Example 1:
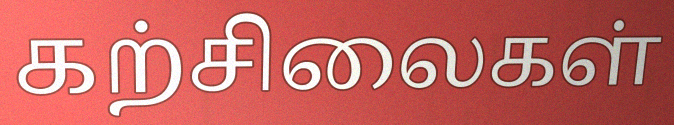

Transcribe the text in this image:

கற்சிலைகள்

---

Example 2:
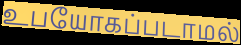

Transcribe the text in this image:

உபயோகப்படாமல்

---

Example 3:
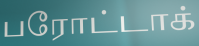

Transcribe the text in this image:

பரோட்டாக்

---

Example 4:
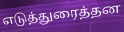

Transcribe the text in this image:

எடுத்துரைத்தன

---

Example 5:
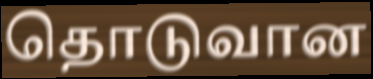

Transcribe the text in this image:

தொடுவான